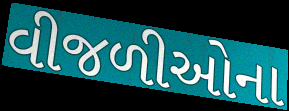
વીજળીઓના